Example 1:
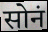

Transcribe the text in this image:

सोनं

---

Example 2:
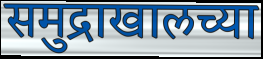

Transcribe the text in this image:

समुद्राखालच्या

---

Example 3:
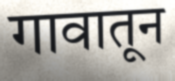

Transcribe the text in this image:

गावातून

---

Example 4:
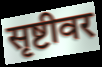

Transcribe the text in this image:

सृष्टीवर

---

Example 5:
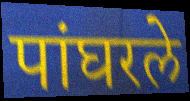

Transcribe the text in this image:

पांघरले